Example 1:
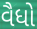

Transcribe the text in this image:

વૈધો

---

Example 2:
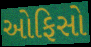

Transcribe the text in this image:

ઓફિસો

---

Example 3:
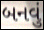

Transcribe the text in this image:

બનવું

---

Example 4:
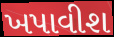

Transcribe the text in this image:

ખપાવીશ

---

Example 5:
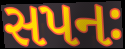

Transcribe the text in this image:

સપનઃ